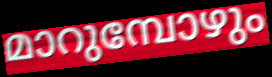
മാറുമ്പോഴും